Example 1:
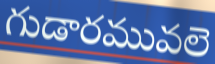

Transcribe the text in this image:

గుడారమువలె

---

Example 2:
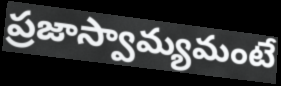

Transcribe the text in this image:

ప్రజాస్వామ్యమంటే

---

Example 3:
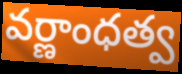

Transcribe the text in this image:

వర్ణాంధత్వ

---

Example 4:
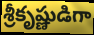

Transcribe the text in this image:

శ్రీకృష్ణుడిగా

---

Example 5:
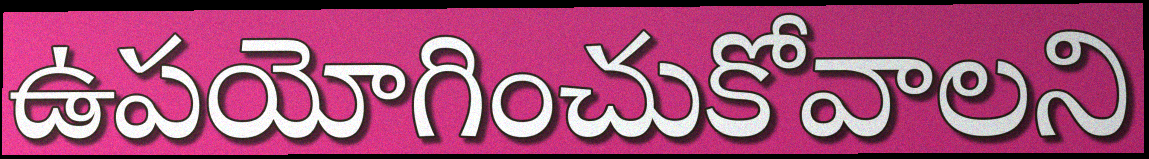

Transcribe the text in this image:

ఉపయోగించుకోవాలని